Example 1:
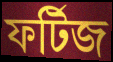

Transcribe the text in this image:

ফর্টিজ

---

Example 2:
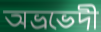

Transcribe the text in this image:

অভ্রভেদী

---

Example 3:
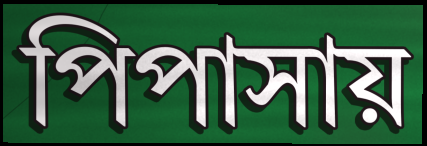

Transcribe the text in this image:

পিপাসায়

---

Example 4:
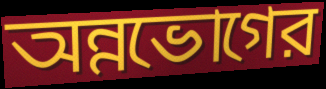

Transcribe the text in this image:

অন্নভোগের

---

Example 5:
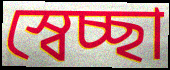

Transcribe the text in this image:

স্বেচ্ছা